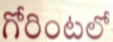
గోరింటలో